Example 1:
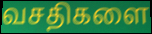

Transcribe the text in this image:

வசதிகளை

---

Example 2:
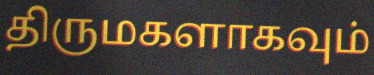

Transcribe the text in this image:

திருமகளாகவும்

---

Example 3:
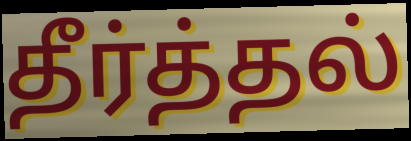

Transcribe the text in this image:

தீர்த்தல்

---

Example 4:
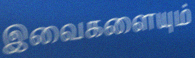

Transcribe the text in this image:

இவைகளையும்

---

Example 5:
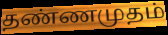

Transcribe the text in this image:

தண்ணமுதம்